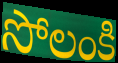
సోలంకి